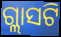
ଗ୍ଲାସଟି